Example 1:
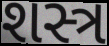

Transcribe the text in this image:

શસ્ત્ર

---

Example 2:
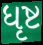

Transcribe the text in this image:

ધૃષ્ટ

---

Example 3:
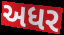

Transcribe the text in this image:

અધર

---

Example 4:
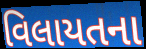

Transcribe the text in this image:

વિલાયતના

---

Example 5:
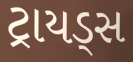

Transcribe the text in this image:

ટ્રાયડ્સ